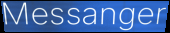
Messanger